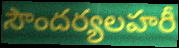
సౌందర్యలహరీ